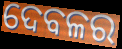
ଦେବଳର